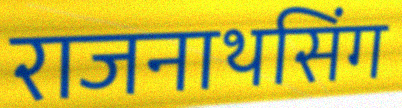
राजनाथसिंग